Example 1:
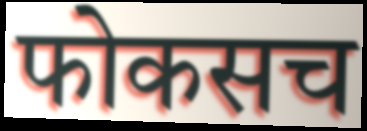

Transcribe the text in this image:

फोकसच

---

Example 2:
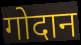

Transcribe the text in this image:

गोदान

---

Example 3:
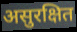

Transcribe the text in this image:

असुरक्षित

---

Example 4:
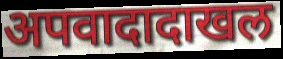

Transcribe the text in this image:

अपवादादाखल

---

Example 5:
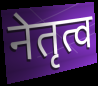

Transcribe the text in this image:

नेतृत्‍व